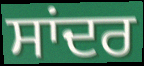
ਸਾਂਦਰ